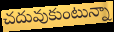
చదువుకుంటున్నా